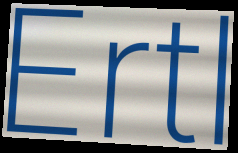
Ertl